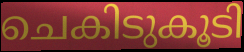
ചെകിടുകൂടി